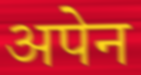
अपेन